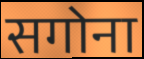
सगोना